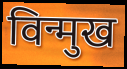
विन्मुख